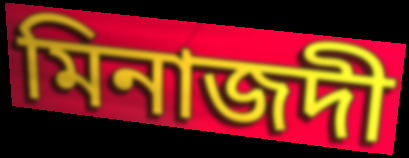
মিনাজদী